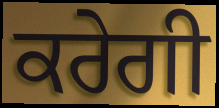
ਕਰੇਗੀ